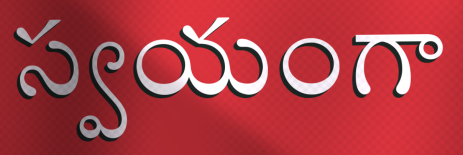
స్వయంగా